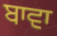
ਬਾਵਾ